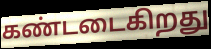
கண்டடைகிறது